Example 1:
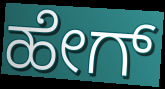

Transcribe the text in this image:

ಹೇಗ್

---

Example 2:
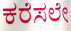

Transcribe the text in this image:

ಕರೆಸಲೇ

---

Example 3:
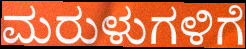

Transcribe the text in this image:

ಮರುಳುಗಳಿಗೆ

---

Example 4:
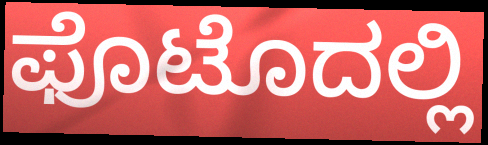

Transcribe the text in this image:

ಫೊಟೊದಲ್ಲಿ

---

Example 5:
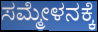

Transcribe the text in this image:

ಸಮ್ಮೇಳನಕ್ಕೆ